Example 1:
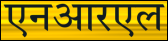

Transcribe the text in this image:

एनआरएल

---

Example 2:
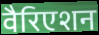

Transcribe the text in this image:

वैरिएशन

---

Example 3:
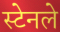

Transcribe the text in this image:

स्टेनले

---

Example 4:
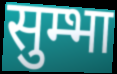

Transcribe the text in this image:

सुम्भा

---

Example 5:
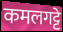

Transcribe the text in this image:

कमलगट्टे